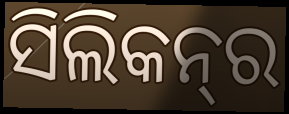
ସିଲିକନ୍‌ର